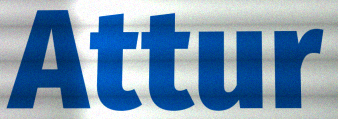
Attur